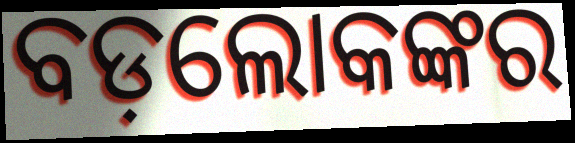
ବଡ଼ଲୋକଙ୍କର